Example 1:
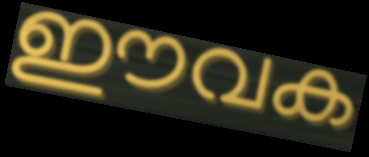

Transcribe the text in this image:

ഈവക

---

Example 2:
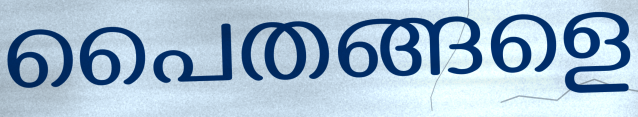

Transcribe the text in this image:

പൈതങ്ങളെ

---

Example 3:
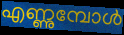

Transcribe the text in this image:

എണ്ണുമ്പോൾ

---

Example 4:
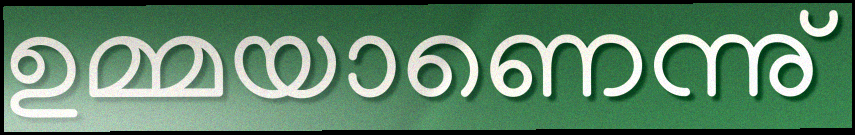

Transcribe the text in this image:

ഉമ്മയാണെന്നു്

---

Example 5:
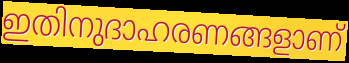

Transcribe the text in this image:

ഇതിനുദാഹരണങ്ങളാണ്